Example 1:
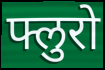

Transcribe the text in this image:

फ्लुरो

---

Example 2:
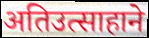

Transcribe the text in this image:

अतिउत्साहाने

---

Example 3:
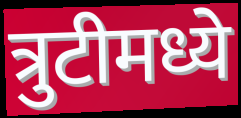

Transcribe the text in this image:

त्रुटीमध्ये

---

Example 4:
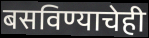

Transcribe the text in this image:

बसविण्याचेही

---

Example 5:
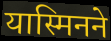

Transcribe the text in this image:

यास्मिनने